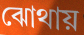
ঝোথায়